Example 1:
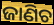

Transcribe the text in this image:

ଜାଣିଚ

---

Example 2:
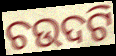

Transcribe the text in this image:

ଚଉଦଟି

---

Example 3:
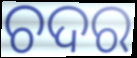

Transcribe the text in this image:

ଚଦର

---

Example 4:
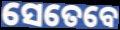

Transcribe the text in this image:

ସେତେବେ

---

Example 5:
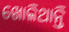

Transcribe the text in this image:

ଖୋଳିଥାନ୍ତି